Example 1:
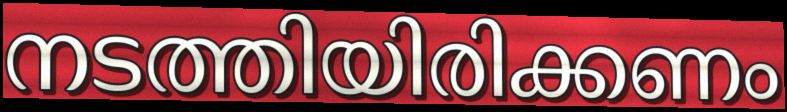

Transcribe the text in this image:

നടത്തിയിരിക്കണം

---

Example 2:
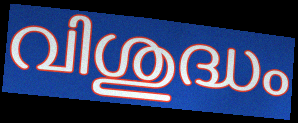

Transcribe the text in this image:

വിശുദ്ധം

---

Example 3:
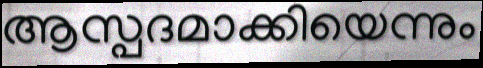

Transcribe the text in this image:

ആസ്പദമാക്കിയെന്നും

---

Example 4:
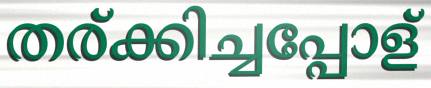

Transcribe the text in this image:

തര്ക്കിച്ചപ്പോള്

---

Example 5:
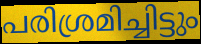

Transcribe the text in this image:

പരിശ്രമിച്ചിട്ടും